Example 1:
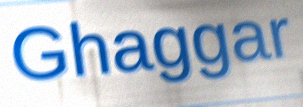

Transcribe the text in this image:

Ghaggar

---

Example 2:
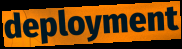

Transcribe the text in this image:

deployment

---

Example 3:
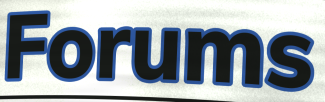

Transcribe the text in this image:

Forums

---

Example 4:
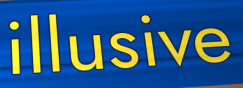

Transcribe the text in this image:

illusive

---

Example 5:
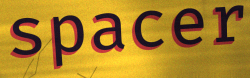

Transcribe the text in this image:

spacer